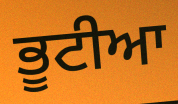
ਭੂਟੀਆ